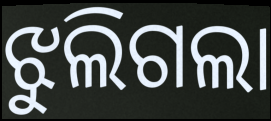
ଝୁଲିଗଲା